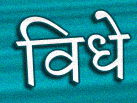
विधे